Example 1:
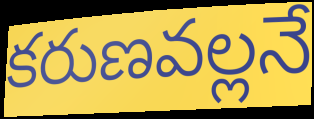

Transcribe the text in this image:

కరుణవల్లనే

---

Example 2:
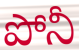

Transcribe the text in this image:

పోనీ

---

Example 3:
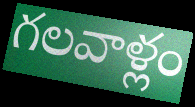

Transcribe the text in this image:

గలవాళ్లం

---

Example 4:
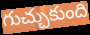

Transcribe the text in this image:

గుచ్చుకుంది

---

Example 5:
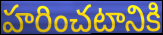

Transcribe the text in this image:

హరించటానికి